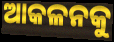
ଆକଳନକୁ